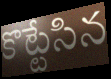
కొట్టేసిన